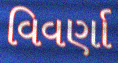
વિવર્ણા